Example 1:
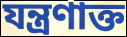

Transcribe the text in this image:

যন্ত্রণাক্ত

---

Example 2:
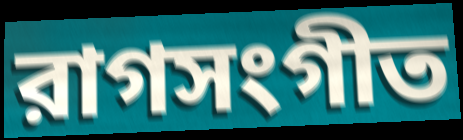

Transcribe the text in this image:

রাগসংগীত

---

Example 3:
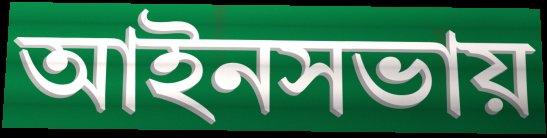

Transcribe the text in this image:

আইনসভায়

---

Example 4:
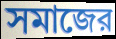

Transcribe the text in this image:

সমাজের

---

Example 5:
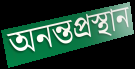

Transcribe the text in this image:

অনন্তপ্রস্থান